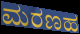
ಮರಣಹ